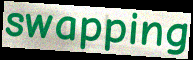
swapping